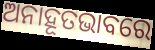
ଅନାହୂତଭାବରେ